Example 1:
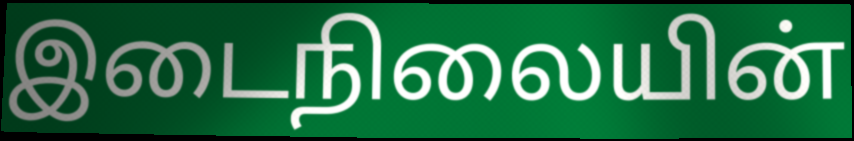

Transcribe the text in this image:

இடைநிலையின்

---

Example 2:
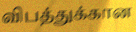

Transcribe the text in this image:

விபத்துக்கான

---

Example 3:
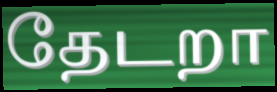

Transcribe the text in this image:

தேடறா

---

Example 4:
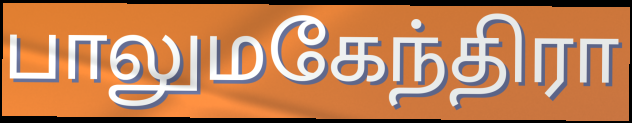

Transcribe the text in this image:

பாலுமகேந்திரா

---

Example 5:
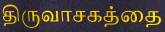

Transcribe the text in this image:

திருவாசகத்தை